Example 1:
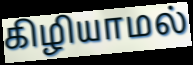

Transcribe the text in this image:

கிழியாமல்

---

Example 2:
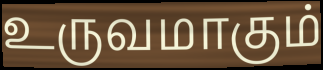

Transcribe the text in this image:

உருவமாகும்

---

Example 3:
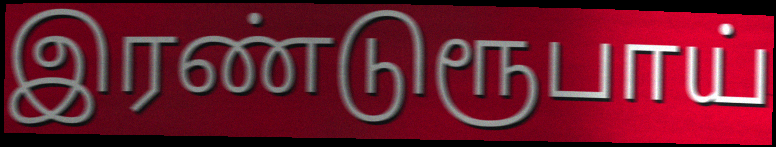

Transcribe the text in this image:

இரண்டுரூபாய்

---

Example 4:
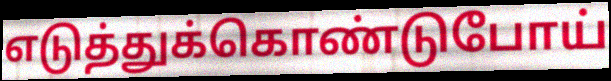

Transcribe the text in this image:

எடுத்துக்கொண்டுபோய்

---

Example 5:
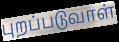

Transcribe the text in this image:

புறப்படுவாள்